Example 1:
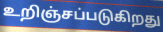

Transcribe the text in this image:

உறிஞ்சப்படுகிறது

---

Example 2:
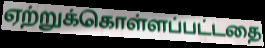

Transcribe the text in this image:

ஏற்றுக்கொள்ளப்பட்டதை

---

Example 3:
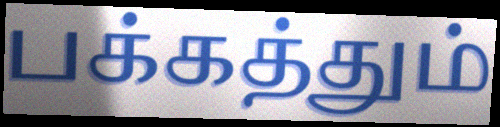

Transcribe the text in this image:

பக்கத்தும்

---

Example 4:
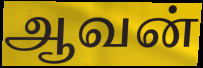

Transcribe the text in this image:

ஆவன்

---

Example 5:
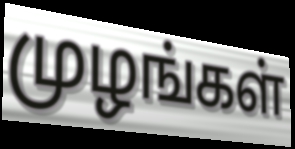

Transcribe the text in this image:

முழங்கள்